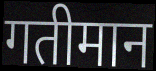
गतीमान